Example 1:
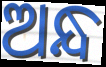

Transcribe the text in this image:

ଅନ୍ଧ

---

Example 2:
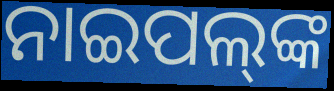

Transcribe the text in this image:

ନାଇପଲ୍‍ଙ୍କ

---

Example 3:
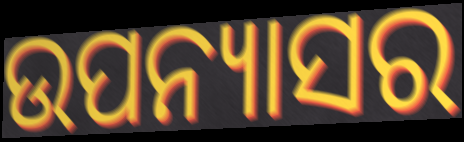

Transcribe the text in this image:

ଉପନ୍ୟାସର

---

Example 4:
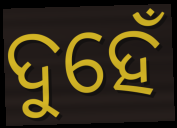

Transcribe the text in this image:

ଦୁହେଁ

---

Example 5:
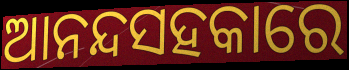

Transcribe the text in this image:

ଆନନ୍ଦସହକାରେ